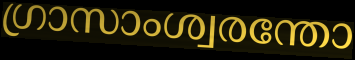
ഗ്രാസാംശ്വരന്തോ